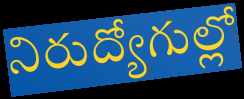
నిరుద్యోగుల్లో